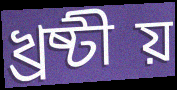
খ্রষ্টীয়